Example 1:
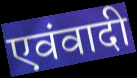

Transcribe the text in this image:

एवंवादी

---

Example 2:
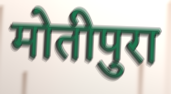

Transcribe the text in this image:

मोतीपुरा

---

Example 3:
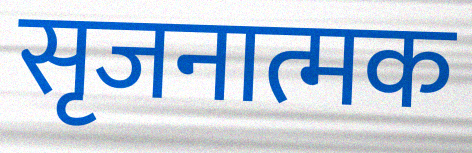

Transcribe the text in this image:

सृजनात्मक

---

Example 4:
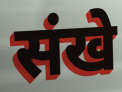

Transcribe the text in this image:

संखे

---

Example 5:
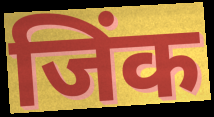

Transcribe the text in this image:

जिंक